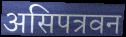
असिपत्रवन